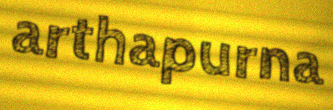
arthapurna